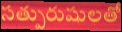
సత్పురుషులతో